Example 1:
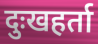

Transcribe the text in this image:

दुःखहर्ता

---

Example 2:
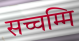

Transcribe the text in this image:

सच्चम्मि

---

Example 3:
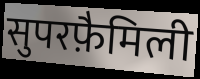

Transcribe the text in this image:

सुपरफ़ैमिली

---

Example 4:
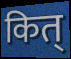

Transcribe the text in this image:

कित्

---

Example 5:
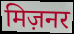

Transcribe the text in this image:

मिज़नर